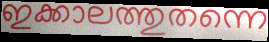
ഇക്കാലത്തുതന്നെ